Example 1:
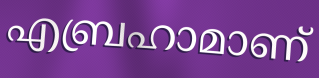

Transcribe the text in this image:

എബ്രഹാമാണ്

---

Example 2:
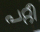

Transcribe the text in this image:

പറ്റീ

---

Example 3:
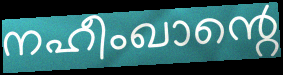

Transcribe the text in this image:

നഹീംഖാന്റെ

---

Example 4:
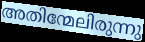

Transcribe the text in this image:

അതിന്മേലിരുന്നു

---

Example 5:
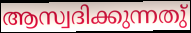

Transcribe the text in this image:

ആസ്വദിക്കുന്നതു്